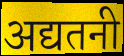
अद्यतनी